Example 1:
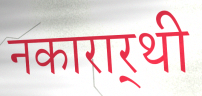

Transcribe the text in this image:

नकारार्थी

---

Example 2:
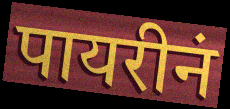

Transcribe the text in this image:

पायरीनं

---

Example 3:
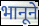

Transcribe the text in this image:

भानूने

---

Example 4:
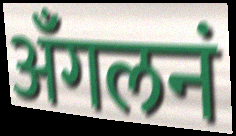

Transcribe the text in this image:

अँगलनं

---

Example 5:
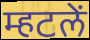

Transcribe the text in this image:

म्हटलें